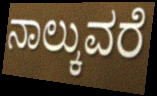
ನಾಲ್ಕುವರೆ